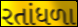
રતાંધળા